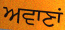
ਅਵਾਣਾਂ